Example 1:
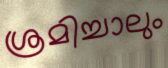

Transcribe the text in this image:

ശ്രമിച്ചാലും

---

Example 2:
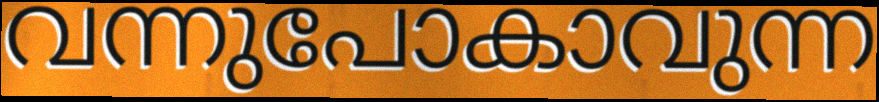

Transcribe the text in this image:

വന്നുപോകാവുന്ന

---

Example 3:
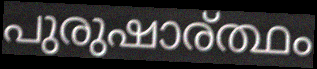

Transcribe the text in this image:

പുരുഷാര്ത്ഥം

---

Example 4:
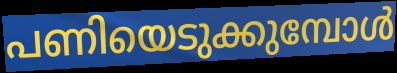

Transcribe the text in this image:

പണിയെടുക്കുമ്പോൾ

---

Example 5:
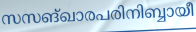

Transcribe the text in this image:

സസങ്ഖാരപരിനിബ്ബായീ